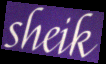
sheik